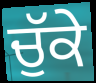
ਚੁੱਕੇ